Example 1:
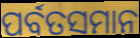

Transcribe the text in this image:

ପର୍ବତସମାନ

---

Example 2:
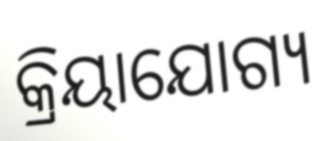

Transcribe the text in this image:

କ୍ରିୟାଯୋଗ୍ୟ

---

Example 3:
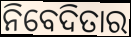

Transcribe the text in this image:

ନିବେଦିତାର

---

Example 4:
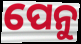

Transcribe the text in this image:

ପେନୁ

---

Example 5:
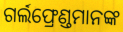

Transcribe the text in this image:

ଗର୍ଲଫ୍ରେଣ୍ଡମାନଙ୍କ